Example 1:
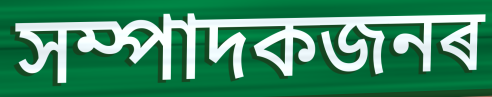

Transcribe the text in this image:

সম্পাদকজনৰ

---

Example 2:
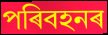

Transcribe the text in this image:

পৰিবহনৰ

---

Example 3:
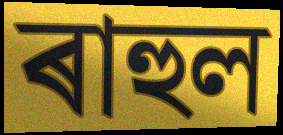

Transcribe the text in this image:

ৰাহুল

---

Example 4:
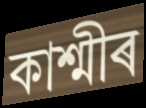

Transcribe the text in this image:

কাশ্মীৰ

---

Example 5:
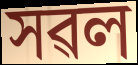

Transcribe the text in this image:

সৱল